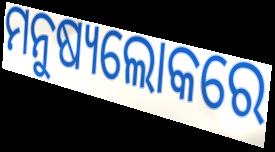
ମନୁଷ୍ୟଲୋକରେ